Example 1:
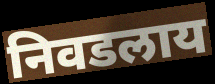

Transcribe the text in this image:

निवडलाय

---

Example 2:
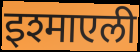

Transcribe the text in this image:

इश्माएली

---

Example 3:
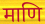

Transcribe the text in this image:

माणि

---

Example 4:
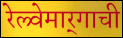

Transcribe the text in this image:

रेल्वेमार्गाची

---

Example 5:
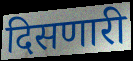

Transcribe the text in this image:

दिसणारी